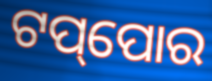
ଟପ୍‌ପୋର